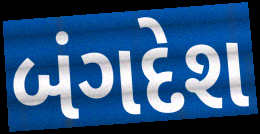
બંગદેશ